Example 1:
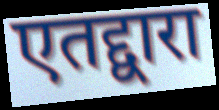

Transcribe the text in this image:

एतद्द्वारा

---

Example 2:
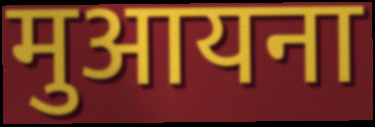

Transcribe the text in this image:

मुआयना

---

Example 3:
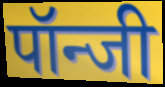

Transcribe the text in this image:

पॉन्जी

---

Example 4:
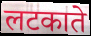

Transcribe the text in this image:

लटकाते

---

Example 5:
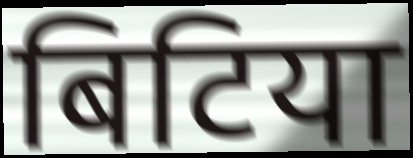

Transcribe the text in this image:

बिटिया